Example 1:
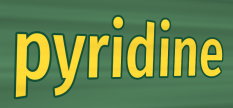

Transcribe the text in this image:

pyridine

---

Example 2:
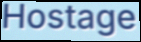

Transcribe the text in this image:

Hostage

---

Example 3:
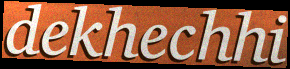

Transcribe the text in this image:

dekhechhi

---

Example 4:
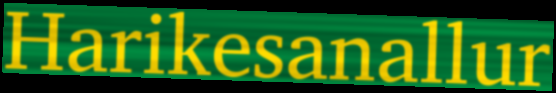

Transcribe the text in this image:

Harikesanallur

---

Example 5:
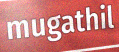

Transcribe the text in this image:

mugathil